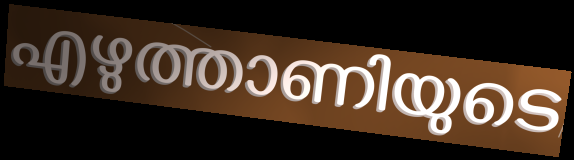
എഴുത്താണിയുടെ